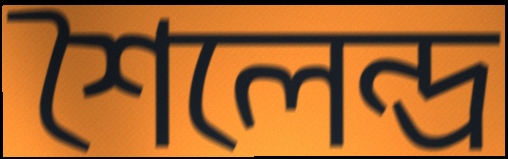
শৈলেন্দ্র